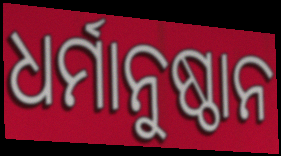
ଧର୍ମାନୁଷ୍ଠାନ